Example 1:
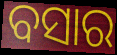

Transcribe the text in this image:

ବସାର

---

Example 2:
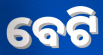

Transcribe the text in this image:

ବେଟି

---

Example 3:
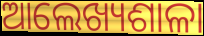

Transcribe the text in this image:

ଆଲେଖ୍ୟଶାଳା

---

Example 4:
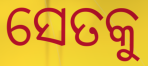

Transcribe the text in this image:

ସେତକୁ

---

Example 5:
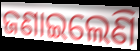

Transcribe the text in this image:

ଜଣାଇଲେଣି